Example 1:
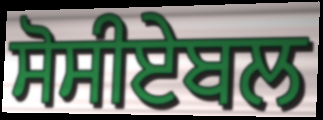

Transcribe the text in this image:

ਸੋਸੀਏਬਲ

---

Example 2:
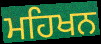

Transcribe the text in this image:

ਮਹਿਖਨ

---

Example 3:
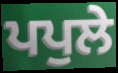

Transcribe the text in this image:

ਪਪੁਲੇ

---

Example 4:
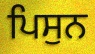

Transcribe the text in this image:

ਪਿਸੁਨ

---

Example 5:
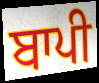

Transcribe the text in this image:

ਬਾਪੀ